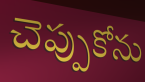
చెప్పుకోను